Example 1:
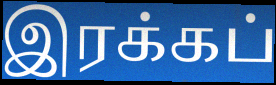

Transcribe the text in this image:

இரக்கப்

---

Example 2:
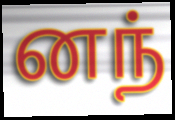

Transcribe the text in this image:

னந்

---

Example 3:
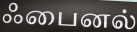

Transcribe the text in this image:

ஃபைனல்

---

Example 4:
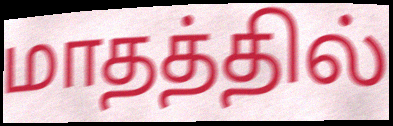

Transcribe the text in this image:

மாதத்தில்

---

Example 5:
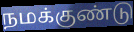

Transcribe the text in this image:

நமக்குண்டு